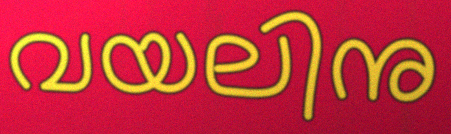
വയലിനു